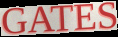
GATES